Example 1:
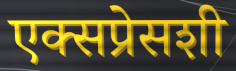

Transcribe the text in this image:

एक्सप्रेसशी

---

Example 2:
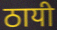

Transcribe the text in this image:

ठायी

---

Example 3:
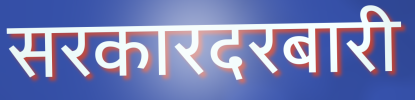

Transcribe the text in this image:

सरकारदरबारी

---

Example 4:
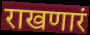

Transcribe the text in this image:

राखणारं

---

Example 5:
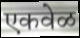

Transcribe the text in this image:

एकवेळ